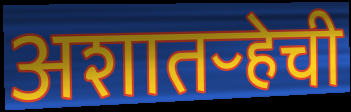
अशातऱ्हेची